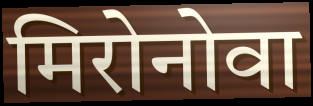
मिरोनोवा